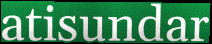
atisundar